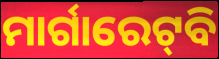
ମାର୍ଗାରେଟ୍‌ବି